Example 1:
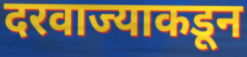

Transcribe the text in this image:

दरवाज्याकडून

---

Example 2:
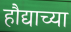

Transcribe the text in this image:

हौद्याच्या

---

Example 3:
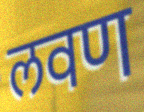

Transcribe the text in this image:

लवण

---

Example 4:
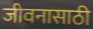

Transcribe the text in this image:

जीवनासाठी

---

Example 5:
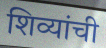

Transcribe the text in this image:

शिव्यांची